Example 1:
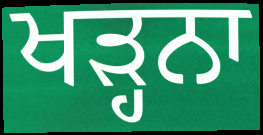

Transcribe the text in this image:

ਖੜ੍ਹਨਾ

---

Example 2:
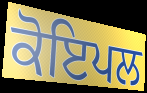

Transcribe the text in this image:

ਕੋਇਪਲ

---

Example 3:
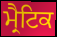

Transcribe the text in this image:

ਮ੍ਰੈਟਿਕ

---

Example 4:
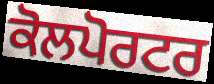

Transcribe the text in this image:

ਕੋਲਪੋਰਟਰ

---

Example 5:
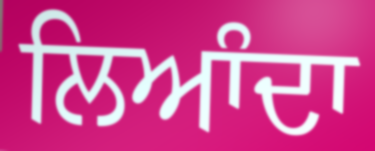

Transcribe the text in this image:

ਲਿਆੰਦਾ